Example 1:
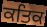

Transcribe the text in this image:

ਕਤਿਕ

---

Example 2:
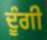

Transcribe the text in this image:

ਦੂੰਗੀ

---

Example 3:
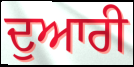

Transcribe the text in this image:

ਦੁਆਰੀ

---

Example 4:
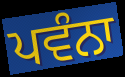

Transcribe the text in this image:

ਪਵੰਨਾ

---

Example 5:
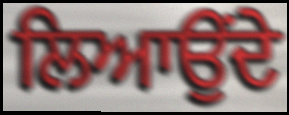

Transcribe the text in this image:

ਲਿਆਉਂਦੇ